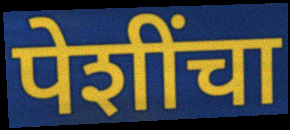
पेशींचा